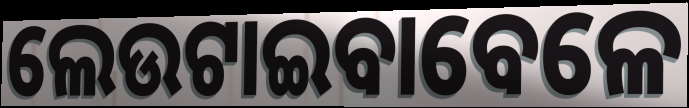
ଲେଉଟାଇବାବେଳେ